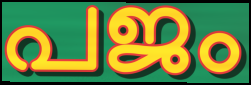
പജം